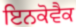
ਇਨਕੋਵੈਕ